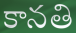
కానతి